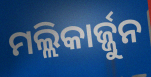
ମଲ୍ଲିକାର୍ଜ୍ଜୁନ